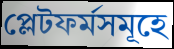
প্লেটফৰ্মসমূহে